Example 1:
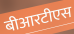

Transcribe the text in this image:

बीआरटीएस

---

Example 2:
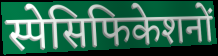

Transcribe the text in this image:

स्पेसिफिकेशनों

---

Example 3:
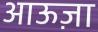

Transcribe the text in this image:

आऊज़ा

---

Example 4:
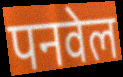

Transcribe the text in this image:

पनवेल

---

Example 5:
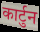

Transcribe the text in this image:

कार्टुन